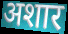
अशार